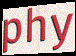
phy